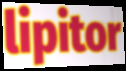
lipitor